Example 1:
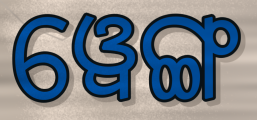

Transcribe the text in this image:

ୱେଙ୍ଗ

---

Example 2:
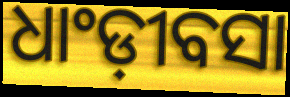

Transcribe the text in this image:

ଧାଂଡ଼ୀବସା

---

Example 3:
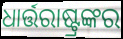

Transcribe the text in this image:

ଧାର୍ତ୍ତରାଷ୍ଟ୍ରଙ୍କର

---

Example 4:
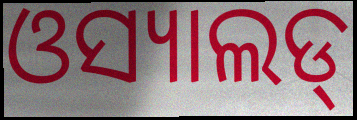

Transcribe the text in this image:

ଓସ୍ୟାଲଡ୍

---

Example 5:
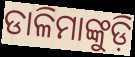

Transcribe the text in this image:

ଡାଳିମାଙ୍କୁଡ଼ି